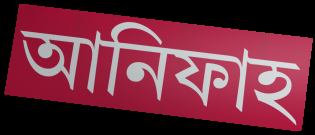
আনিফাহ